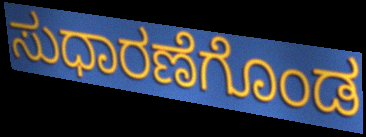
ಸುಧಾರಣೆಗೊಂಡ